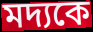
মদ্যকে